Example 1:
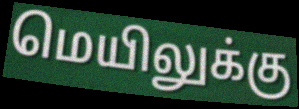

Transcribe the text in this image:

மெயிலுக்கு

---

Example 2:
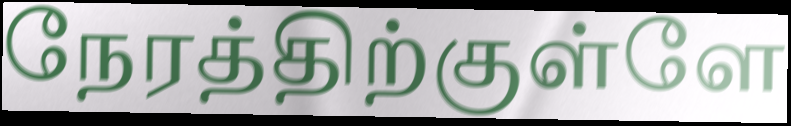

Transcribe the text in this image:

நேரத்திற்குள்ளே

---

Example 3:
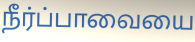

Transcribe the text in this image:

நீர்ப்பாவையை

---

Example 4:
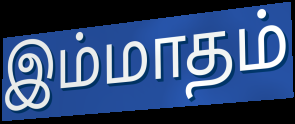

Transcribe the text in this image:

இம்மாதம்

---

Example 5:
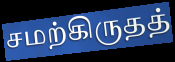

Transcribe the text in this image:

சமற்கிருதத்